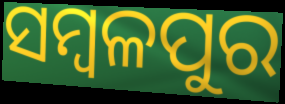
ସମ୍ବଳପୁର